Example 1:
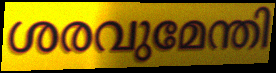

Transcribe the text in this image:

ശരവുമേന്തി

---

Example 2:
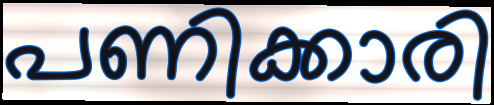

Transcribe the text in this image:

പണിക്കാരി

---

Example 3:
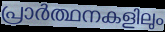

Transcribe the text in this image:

പ്രാർത്ഥനകളിലും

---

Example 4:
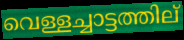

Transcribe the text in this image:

വെള്ളച്ചാട്ടത്തില്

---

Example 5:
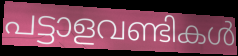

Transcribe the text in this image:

പട്ടാളവണ്ടികൾ